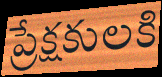
ప్రేక్షకులకి